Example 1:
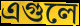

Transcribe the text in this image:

এগুলে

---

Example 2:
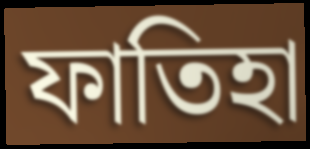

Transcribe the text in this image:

ফাতিহা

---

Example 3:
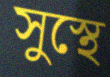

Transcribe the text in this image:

সুস্থে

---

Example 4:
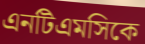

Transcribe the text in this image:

এনটিএমসিকে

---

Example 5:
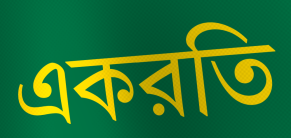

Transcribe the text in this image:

একরতি